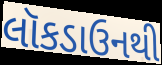
લૉકડાઉનથી